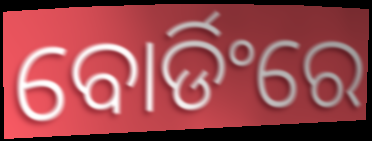
ବୋର୍ଡିଂରେ